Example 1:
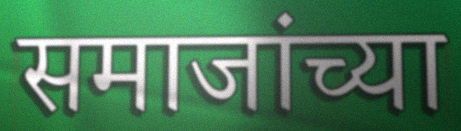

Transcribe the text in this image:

समाजांच्या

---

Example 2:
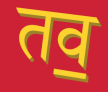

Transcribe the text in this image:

तव॒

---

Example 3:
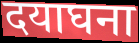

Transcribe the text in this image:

दयाघना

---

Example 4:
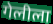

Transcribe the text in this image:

गेलीला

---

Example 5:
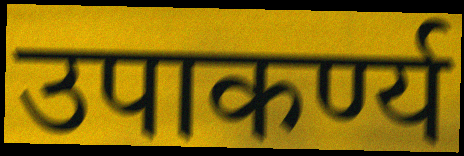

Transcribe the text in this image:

उपाकर्ण्य